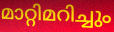
മാറ്റിമറിച്ചും